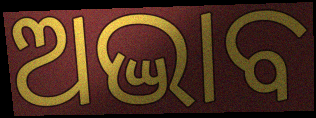
ଅଦ୍ଭାବ